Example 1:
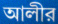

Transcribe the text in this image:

আলীর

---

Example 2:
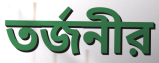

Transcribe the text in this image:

তর্জনীর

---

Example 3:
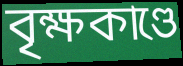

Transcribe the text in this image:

বৃক্ষকাণ্ডে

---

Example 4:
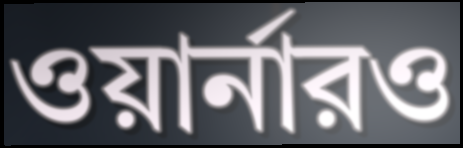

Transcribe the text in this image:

ওয়ার্নারও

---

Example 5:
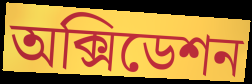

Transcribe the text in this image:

অক্সিডেশন